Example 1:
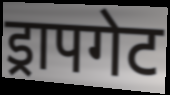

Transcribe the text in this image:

ड्रापगेट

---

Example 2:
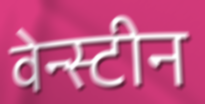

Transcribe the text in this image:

वेन्स्टीन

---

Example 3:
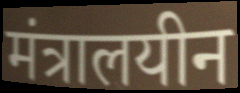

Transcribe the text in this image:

मंत्रालयीन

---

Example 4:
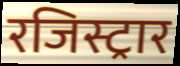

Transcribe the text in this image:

रजिस्ट्रार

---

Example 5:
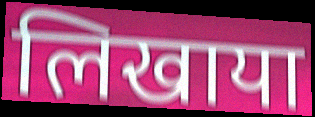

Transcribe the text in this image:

लिखाया